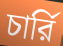
চার্রি